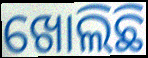
ଖୋଲିଛି